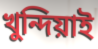
খুন্দিয়াই